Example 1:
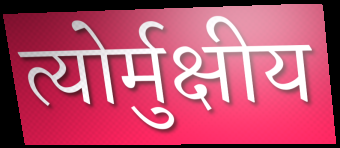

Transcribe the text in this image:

त्योर्मुक्षीय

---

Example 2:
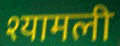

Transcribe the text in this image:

श्यामली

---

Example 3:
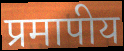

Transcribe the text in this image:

प्रमापीय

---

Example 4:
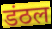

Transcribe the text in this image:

डंठल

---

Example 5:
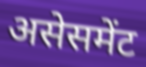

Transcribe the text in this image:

असेसमेंट